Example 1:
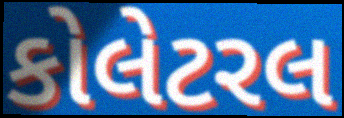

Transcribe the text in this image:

કોલેટરલ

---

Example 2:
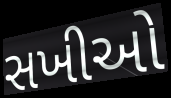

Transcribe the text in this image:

સખીઓ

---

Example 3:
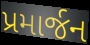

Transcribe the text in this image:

પ્રમાર્જન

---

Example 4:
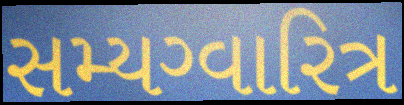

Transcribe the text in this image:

સમ્યગ્વારિત્ર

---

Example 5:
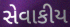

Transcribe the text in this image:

સેવાકીય